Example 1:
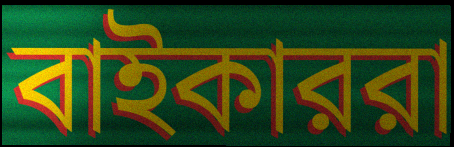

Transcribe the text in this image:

বাইকাররা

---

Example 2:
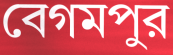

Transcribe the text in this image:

বেগমপুর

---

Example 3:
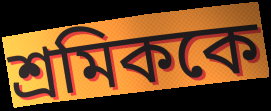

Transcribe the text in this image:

শ্রমিককে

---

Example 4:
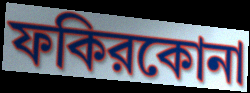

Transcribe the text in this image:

ফকিরকোনা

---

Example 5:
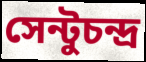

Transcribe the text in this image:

সেন্টুচন্দ্র